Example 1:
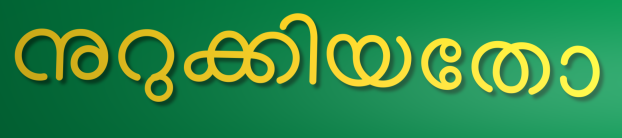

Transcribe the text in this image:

നുറുക്കിയതോ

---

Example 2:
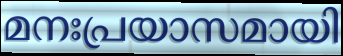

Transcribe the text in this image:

മനഃപ്രയാസമായി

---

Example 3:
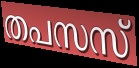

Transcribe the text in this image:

തപസസ്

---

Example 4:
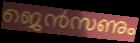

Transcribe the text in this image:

ജെൻസണും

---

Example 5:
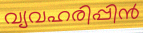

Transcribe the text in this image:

വ്യവഹരിപ്പിൻ